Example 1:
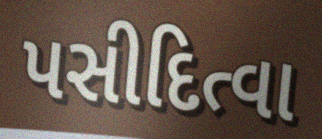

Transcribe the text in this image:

પસીદિત્વા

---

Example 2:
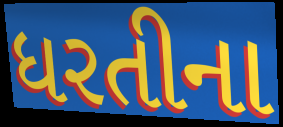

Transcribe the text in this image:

ધરતીના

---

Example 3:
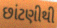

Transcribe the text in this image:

છાંટણીથી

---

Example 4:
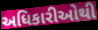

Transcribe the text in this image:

અધિકારીઓથી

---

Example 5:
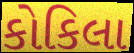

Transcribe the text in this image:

કોકિલા